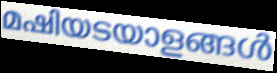
മഷിയടയാളങ്ങൾ